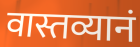
वास्तव्यानं